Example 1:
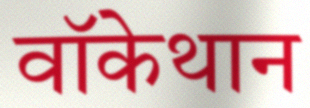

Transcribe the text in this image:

वॉकेथान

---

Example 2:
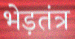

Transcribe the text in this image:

भेड़तंत्र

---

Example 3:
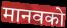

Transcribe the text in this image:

मानवको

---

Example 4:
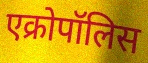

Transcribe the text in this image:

एक्रोपॉलिस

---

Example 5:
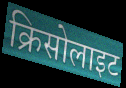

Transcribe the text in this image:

क्रिसोलाइट